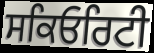
ਸਕਿਓਰਿਟੀ